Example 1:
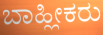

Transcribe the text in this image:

ಬಾಹ್ಲೀಕರು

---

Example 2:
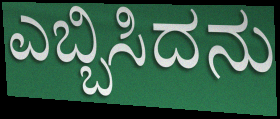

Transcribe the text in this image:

ಎಬ್ಬಿಸಿದನು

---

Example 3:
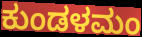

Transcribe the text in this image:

ಕುಂಡಳಮಂ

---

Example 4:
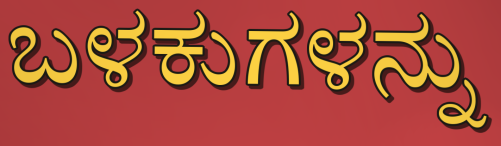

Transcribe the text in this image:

ಬಳಕುಗಳನ್ನು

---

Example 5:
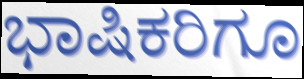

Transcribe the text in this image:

ಭಾಷಿಕರಿಗೂ